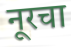
नूरचा